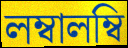
লম্বালম্বি